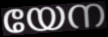
യേന